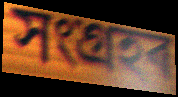
সংগ্ৰহৰ